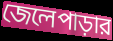
জেলেপাড়ার